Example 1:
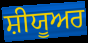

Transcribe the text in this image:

ਸ਼ੀਯੂਅਰ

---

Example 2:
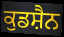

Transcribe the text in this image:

ਕੁਡਸ਼ੈਨ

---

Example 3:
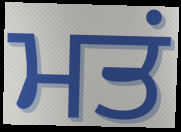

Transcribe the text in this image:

ਮਤਂ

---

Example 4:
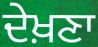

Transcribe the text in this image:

ਦੇਖ਼ਣਾ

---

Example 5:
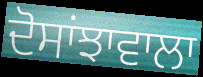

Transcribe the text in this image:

ਦੋਸਾਂਝਾਵਾਲਾ